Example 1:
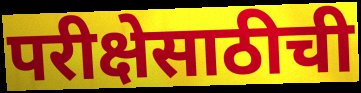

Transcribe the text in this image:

परीक्षेसाठीची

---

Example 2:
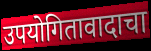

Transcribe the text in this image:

उपयोगितावादाचा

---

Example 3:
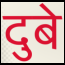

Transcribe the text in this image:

दुबे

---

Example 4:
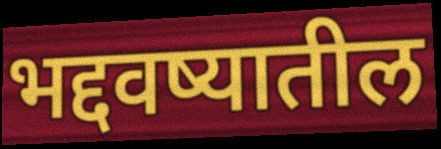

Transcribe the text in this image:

भद्दवष्यातील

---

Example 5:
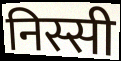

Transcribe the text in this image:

निस्सी